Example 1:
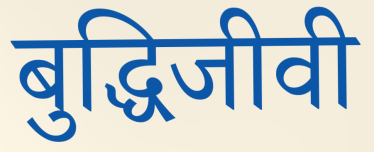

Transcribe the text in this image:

बुद्धिजीवी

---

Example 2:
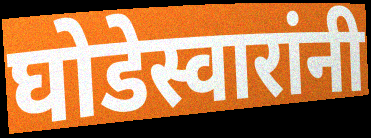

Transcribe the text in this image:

घोडेस्वारांनी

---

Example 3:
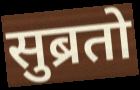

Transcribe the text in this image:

सुब्रतो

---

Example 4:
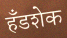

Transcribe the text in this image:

हँडशेक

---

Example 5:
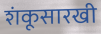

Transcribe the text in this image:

शंकूसारखी